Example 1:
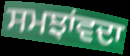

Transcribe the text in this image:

ਸਮਝਾਂਵਦਾ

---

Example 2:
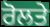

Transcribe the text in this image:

ਰੋਲਤੇ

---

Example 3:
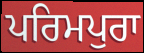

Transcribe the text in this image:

ਪਰਿਮਪੁਰਾ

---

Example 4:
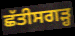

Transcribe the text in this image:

ਛੱਤੀਸਗਡ਼੍ਹ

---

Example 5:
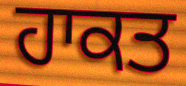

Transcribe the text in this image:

ਹਾਕਤ